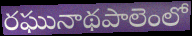
రఘునాథపాలెంలో